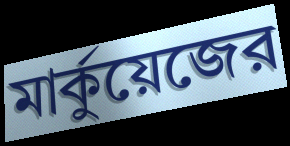
মার্কুয়েজের